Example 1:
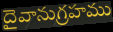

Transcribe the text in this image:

దైవానుగ్రహము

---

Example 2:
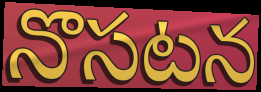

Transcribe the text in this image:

నొసటన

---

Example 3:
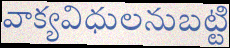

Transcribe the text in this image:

వాక్యవిధులనుబట్టి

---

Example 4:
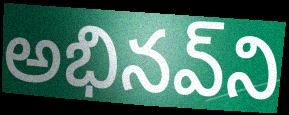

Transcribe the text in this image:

అభినవ్‌ని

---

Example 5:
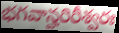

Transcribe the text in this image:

భగవాన్హరిరీశ్వరః